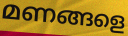
മണങ്ങളെ